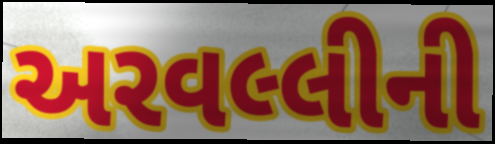
અરવલ્લીની